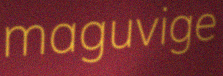
maguvige